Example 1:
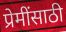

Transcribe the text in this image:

प्रेमींसाठी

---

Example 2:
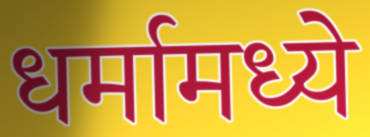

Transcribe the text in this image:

धर्मामध्ये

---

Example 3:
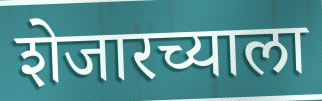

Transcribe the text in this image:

शेजारच्याला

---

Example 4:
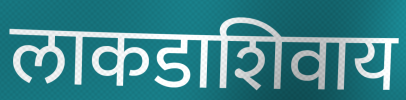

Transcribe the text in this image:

लाकडाशिवाय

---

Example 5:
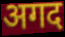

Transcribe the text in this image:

अगद